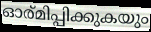
ഓര്മിപ്പിക്കുകയും